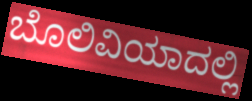
ಬೊಲಿವಿಯಾದಲ್ಲಿ